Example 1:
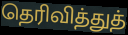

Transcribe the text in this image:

தெரிவித்துத்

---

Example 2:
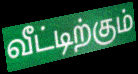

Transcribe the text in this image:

வீட்டிற்கும்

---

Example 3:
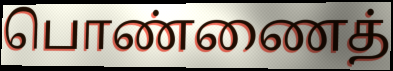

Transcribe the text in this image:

பொண்ணைத்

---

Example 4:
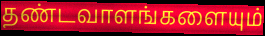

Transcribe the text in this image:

தண்டவாளங்களையும்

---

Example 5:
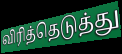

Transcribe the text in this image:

விரித்தெடுத்து